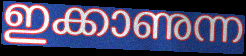
ഇക്കാണുന്ന